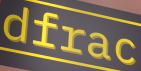
dfrac